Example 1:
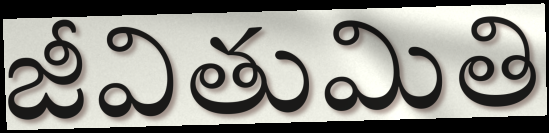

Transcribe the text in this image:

జీవితుమితి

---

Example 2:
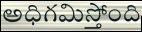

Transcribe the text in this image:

అధిగమిస్తోంది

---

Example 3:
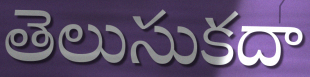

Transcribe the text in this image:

తెలుసుకదా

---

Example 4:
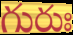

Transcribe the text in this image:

గురుః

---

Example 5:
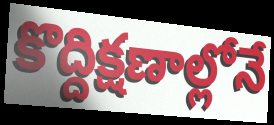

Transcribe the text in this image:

కొద్దిక్షణాల్లోనే